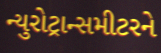
ન્યુરોટ્રાન્સમીટરને